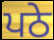
ਪਠੇ